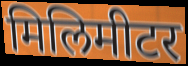
मिलिमीटर